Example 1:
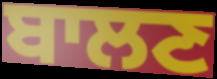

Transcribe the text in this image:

ਬਾਲਣ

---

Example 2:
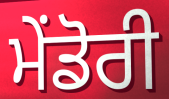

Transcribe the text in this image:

ਮੇਂਡੋਰੀ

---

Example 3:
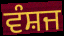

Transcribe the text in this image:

ਵੰਸ਼ਜ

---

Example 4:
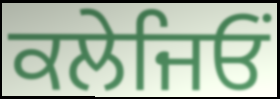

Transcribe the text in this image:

ਕਲੇਜਿਓਂ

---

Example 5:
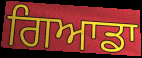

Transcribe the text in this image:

ਗਿਆਡਾ